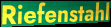
Riefenstahl